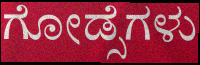
ಗೋಡ್ಸೆಗಳು